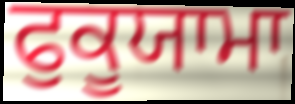
ਫੁਕੂਯਾਮਾ